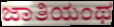
ಜಾತಿಯಂಥ